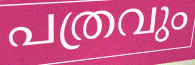
പത്രവും